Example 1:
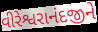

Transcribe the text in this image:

વીરેશ્વરાનંદજીને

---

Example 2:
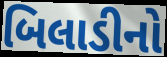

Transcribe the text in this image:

બિલાડીનો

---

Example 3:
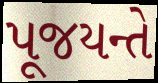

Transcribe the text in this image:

પૂજયન્તે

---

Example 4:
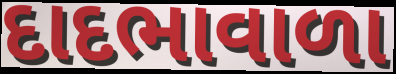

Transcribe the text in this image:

દાદભાવાળા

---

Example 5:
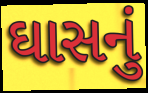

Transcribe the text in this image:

ઘાસનું